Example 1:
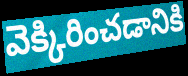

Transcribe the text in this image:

వెక్కిరించడానికి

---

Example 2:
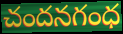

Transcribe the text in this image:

చందనగంధ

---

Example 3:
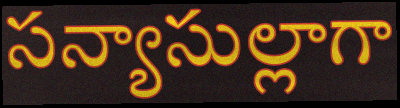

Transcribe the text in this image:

సన్యాసుల్లాగా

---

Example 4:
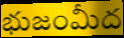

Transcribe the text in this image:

భుజంమీద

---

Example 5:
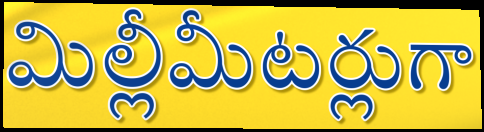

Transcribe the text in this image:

మిల్లీమీటర్లుగా